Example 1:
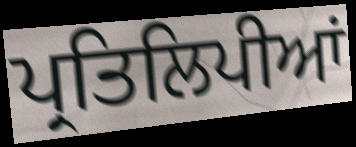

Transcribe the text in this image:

ਪ੍ਰਤਿਲਿਪੀਆਂ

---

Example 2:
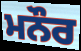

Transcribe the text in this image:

ਮਨੌਰ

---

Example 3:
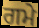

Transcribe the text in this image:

ਗਮੇ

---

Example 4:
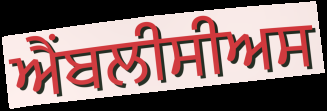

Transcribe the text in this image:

ਐਂਬਲੀਸੀਅਸ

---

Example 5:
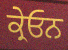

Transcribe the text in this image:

ਕ੍ਰੇਓਨ